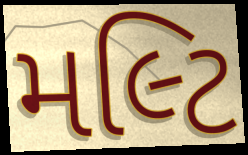
મલ્ટિ